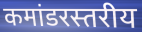
कमांडरस्तरीय